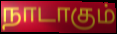
நாடாகும்